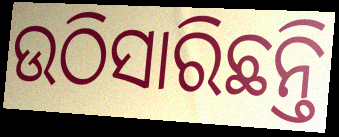
ଉଠିସାରିଛନ୍ତି